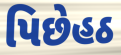
પિછેહઠ